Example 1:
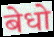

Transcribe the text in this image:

बेधो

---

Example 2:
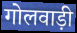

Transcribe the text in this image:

गोलवाड़ी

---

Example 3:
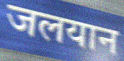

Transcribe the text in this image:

जलयान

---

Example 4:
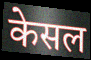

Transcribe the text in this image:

केसल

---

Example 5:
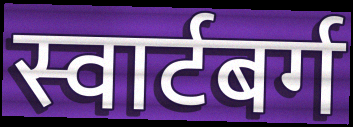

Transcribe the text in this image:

स्वार्टबर्ग